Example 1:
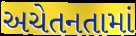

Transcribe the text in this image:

અચેતનતામાં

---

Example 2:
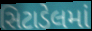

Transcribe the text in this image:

સિટાડેલમાં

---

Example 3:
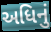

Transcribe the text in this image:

અધિનું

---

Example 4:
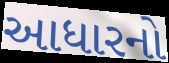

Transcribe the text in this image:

આધારનો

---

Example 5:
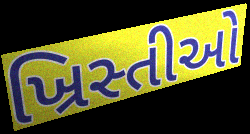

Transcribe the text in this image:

ખ્રિસ્તીઓ